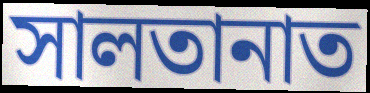
সালতানাত